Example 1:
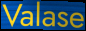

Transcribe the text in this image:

Valase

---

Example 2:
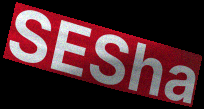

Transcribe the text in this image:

SESha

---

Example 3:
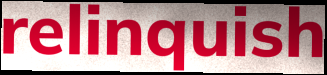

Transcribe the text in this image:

relinquish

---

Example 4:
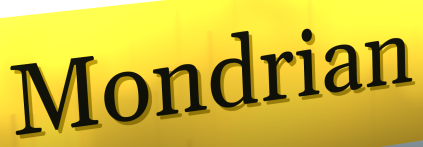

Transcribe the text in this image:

Mondrian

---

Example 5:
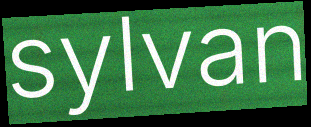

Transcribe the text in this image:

sylvan